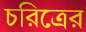
চরিত্রের